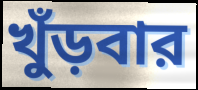
খুঁড়বার